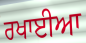
ਰਖਾਈਆ